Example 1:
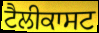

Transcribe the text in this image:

ਟੈਲੀਕਾਸਟ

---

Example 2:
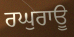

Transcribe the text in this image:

ਰਘੁਰਾਊ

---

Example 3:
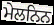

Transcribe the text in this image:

ਮੇਲਨਿਨ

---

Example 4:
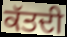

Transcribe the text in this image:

ਕੱਤਦੀ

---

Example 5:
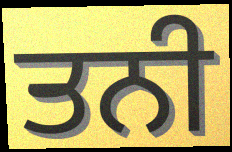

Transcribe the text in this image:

ਤਨੀ